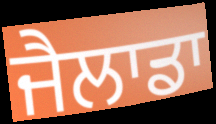
ਜੈਲਾਡਾ